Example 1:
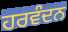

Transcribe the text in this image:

ਹਰਵੰਦਨ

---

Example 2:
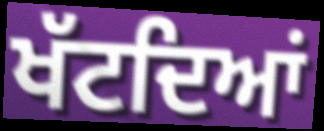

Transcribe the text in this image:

ਖੱਟਦਿਆਂ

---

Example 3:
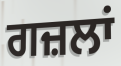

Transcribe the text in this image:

ਗਜ਼ਲਾਂ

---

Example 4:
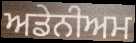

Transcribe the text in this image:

ਅਡੇਨੀਅਮ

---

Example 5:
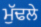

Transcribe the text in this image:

ਮੁੱਢਲੇ